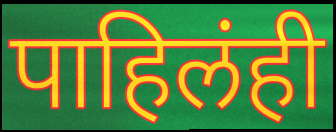
पाहिलंही